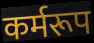
कर्मरूप